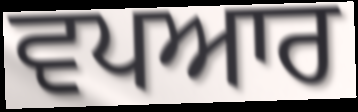
ਵਪਆਰ